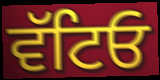
ਵੱਟਿਓ